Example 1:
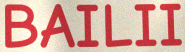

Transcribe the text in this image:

BAILII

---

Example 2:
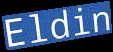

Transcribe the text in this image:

Eldin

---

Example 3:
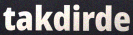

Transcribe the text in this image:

takdirde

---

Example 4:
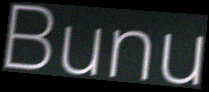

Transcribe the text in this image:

Bunu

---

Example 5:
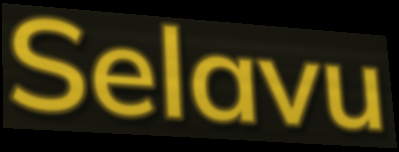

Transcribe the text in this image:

Selavu